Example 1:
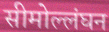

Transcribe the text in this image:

सीमोल्लंघन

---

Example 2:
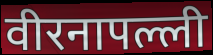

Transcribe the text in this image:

वीरनापल्ली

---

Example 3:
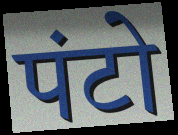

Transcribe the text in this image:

पंटो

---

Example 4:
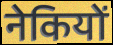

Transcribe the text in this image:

नेकियों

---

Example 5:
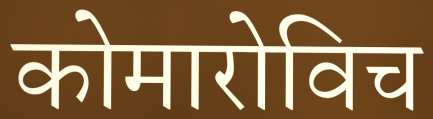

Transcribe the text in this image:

कोमारोविच